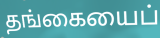
தங்கையைப்